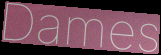
Dames